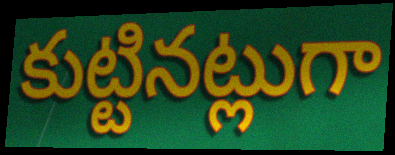
కుట్టినట్లుగా